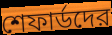
শেফার্ডদের